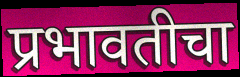
प्रभावतीचा